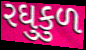
રઘુકુળ